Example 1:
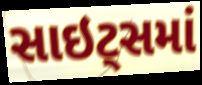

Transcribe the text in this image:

સાઇટ્સમાં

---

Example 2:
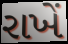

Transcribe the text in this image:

રાખેં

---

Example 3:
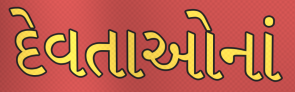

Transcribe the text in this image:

દેવતાઓનાં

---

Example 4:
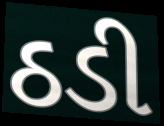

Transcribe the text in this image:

ઠડી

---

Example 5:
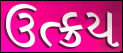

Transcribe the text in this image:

ઉત્ક્રય